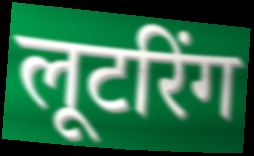
लूटरिंग